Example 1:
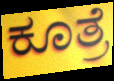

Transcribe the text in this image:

ಕೂತ್ರೆ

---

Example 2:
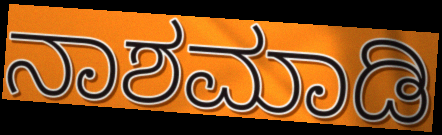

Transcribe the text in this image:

ನಾಶಮಾಡಿ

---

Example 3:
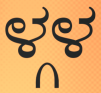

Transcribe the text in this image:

ಳ್ಗಳ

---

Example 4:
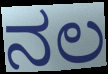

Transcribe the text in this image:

ನಲ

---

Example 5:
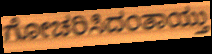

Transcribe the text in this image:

ಗೋಚರಿಸಿದಂತಾಯ್ತು